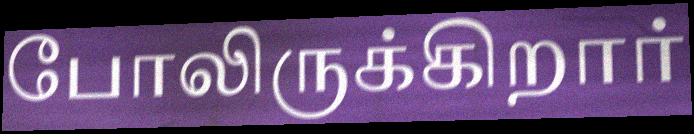
போலிருக்கிறார்